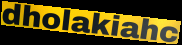
dholakiahc